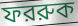
ফররুক